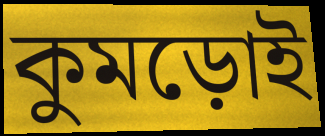
কুমড়োই